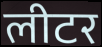
लीटर